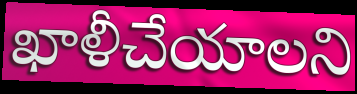
ఖాళీచేయాలని